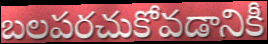
బలపరచుకోవడానికీ